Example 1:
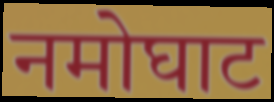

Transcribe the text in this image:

नमोघाट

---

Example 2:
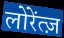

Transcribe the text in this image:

लोरेंत्ज़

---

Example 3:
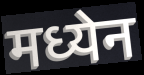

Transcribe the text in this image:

मध्येन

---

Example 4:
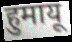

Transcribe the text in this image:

हुमायू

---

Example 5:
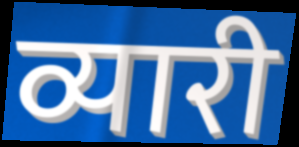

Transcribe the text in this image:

व्यारी